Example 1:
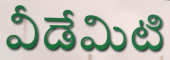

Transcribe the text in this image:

వీడేమిటి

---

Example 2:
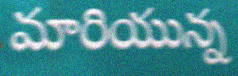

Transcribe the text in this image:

మారియున్న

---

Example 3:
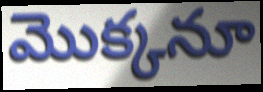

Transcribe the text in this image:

మొక్కనూ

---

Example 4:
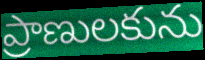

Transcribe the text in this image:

ప్రాణులకును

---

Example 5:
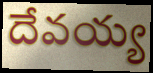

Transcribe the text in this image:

దేవయ్య